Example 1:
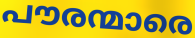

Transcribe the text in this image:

പൗരന്മാരെ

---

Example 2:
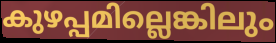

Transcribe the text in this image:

കുഴപ്പമില്ലെങ്കിലും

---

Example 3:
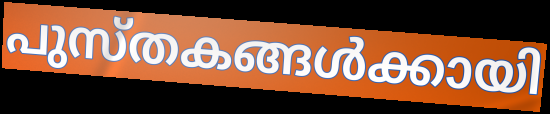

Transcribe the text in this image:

പുസ്തകങ്ങൾക്കായി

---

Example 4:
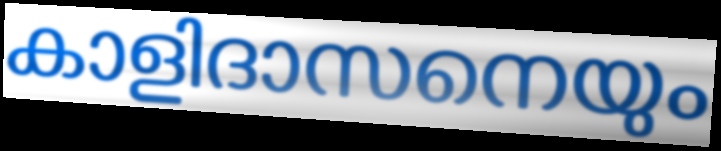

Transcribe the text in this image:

കാളിദാസനെയും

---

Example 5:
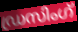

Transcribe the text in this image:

ഡ്രസിംഗ്